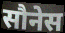
सौनेस